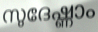
സുദേഷ്ണാം